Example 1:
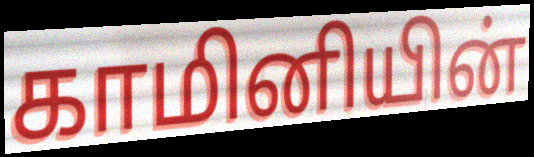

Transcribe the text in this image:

காமினியின்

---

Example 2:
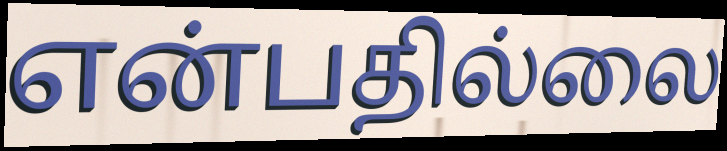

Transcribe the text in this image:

என்பதில்லை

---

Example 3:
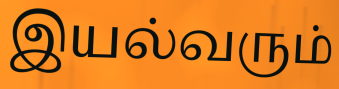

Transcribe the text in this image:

இயல்வரும்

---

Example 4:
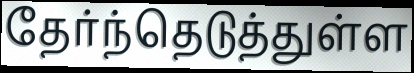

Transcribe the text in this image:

தேர்ந்தெடுத்துள்ள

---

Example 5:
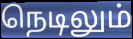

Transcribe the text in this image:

நெடிலும்